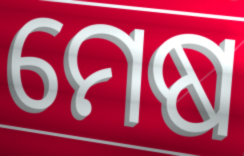
ମେଷ